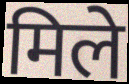
मिले